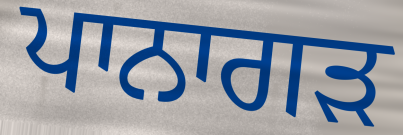
ਪਾਨਾਗੜ